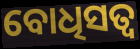
ବୋଧିସତ୍ୱ